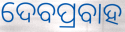
ଦେବପ୍ରବାହ